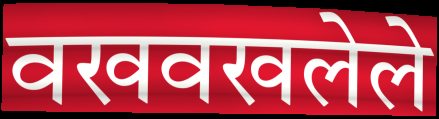
वखवखलेले